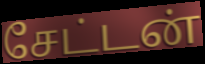
சேட்டன்